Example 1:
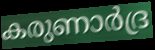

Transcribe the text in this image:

കരുണാർദ്ര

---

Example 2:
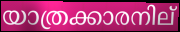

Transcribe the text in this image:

യാത്രക്കാരനില്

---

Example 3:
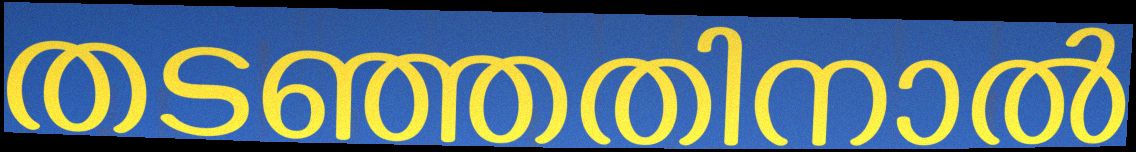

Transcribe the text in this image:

തടഞ്ഞതിനാൽ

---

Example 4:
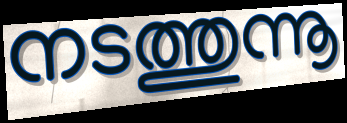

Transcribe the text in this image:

നടത്തുന്നൂ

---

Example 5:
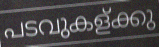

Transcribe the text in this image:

പടവുകള്ക്കു